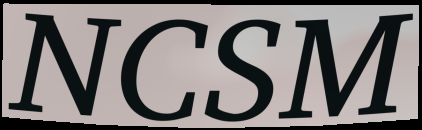
NCSM